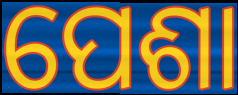
ପେଶା